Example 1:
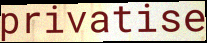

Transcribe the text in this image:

privatise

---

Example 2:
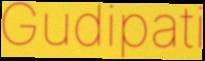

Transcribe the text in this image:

Gudipati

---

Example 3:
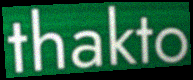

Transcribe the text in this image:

thakto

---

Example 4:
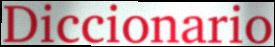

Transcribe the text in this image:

Diccionario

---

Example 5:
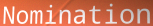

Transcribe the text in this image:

Nomination